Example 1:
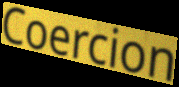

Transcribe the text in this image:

Coercion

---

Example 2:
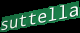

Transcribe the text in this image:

suttella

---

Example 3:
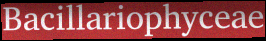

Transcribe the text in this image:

Bacillariophyceae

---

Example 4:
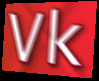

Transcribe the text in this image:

Vk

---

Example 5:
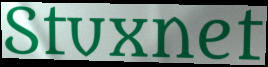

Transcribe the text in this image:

Stuxnet